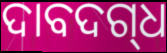
ଦାବଦଗ୍‍ଧ